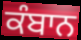
ਕੰਬਾਨ